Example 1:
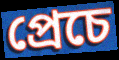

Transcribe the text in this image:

প্ৰেচে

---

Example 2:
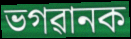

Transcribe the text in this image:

ভগৱানক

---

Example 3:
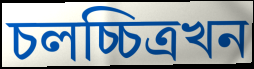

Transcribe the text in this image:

চলচ্চিত্ৰখন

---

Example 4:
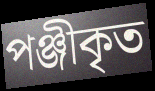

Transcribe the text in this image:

পঞ্জীকৃত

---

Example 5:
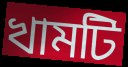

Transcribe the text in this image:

খামটি